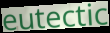
eutectic